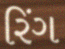
રિંગ